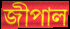
জীপাল